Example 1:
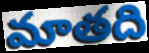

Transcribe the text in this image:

మాతది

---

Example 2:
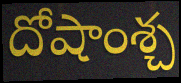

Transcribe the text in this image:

దోషాంశ్చ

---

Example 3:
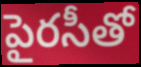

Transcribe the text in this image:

పైరసీతో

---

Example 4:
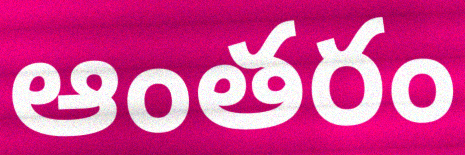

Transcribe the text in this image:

ఆంతరం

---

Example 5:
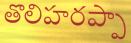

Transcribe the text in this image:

తొలిహరప్పా